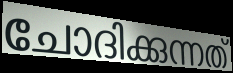
ചോദിക്കുന്നത്